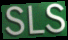
SLS